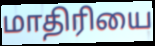
மாதிரியை